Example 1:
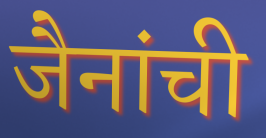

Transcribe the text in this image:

जैनांची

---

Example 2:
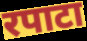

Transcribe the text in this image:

रपाटा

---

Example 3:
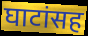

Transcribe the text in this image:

घाटांसह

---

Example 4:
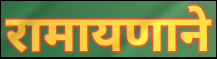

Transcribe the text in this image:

रामायणाने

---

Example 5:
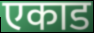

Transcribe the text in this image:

एकाड